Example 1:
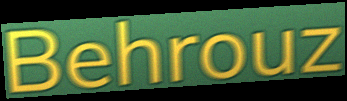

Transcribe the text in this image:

Behrouz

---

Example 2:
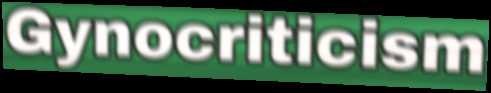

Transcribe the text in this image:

Gynocriticism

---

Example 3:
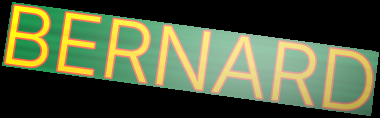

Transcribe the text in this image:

BERNARD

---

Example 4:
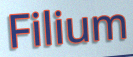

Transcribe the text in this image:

Filium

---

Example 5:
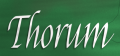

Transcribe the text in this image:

Thorum